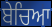
ਬੇਚਿਆ